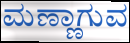
ಮಣ್ಣಾಗುವ